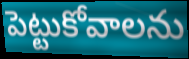
పెట్టుకోవాలను